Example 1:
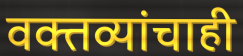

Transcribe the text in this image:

वक्तव्यांचाही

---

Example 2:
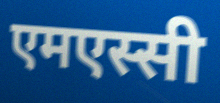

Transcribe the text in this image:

एमएस्सी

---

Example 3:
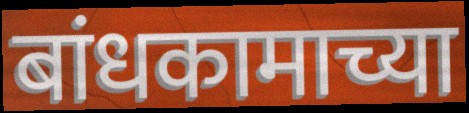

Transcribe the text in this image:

बांधकामाच्या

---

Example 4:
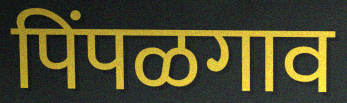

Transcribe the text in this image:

पिंपळगाव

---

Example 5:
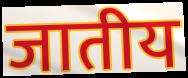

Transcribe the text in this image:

जातीय